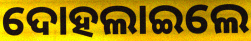
ଦୋହଲାଇଲେ